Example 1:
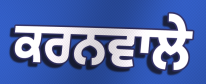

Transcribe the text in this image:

ਕਰਨਵਾਲੇ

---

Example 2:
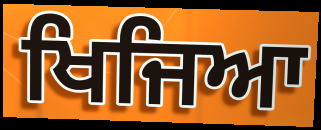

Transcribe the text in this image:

ਖਿਜਿਆ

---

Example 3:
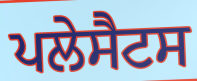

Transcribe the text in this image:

ਪਲੇਸੈਟਸ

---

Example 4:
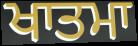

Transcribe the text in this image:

ਖਾਤਮਾ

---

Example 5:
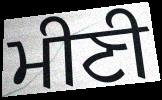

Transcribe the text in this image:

ਮੀਣੀ